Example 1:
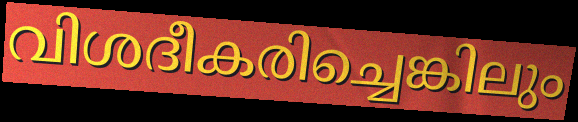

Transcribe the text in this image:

വിശദീകരിച്ചെങ്കിലും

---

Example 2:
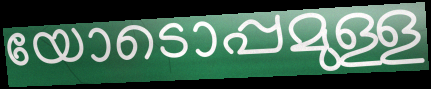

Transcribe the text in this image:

യോടൊപ്പമുള്ള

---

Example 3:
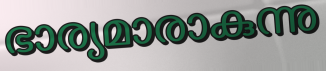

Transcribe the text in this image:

ഭാര്യമാരാകുന്നു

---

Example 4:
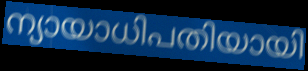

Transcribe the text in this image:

ന്യായാധിപതിയായി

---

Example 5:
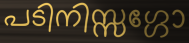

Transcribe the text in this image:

പടിനിസ്സഗ്ഗോ